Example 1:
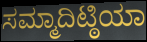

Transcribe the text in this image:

ಸಮ್ಮಾದಿಟ್ಠಿಯಾ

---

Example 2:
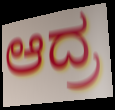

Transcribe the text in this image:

ಆದ್ರ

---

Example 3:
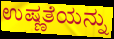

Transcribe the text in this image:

ಉಷ್ಣತೆಯನ್ನು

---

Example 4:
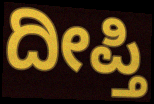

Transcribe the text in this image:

ದೀಪ್ತಿ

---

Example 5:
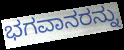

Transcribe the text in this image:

ಭಗವಾನರನ್ನು